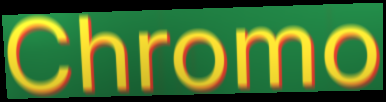
Chromo